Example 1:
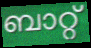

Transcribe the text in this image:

ബാറ്റ്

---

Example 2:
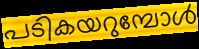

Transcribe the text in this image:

പടികയറുമ്പോൾ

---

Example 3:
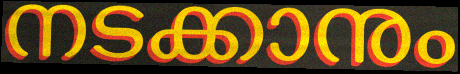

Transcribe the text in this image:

നടക്കാനും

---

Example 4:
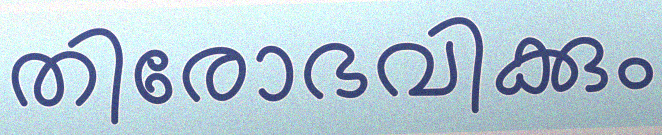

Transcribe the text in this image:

തിരോഭവിക്കും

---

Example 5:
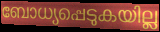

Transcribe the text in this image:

ബോധ്യപ്പെടുകയില്ല